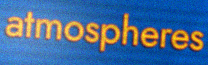
atmospheres